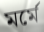
মর্মে